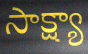
సాక్ష్యా